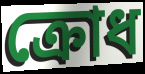
ক্ৰোধ